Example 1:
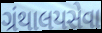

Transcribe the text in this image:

ગ્રંથાલયસેવા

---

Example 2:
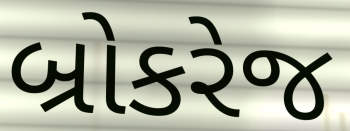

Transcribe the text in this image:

બ્રોકરેજ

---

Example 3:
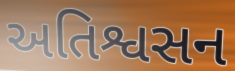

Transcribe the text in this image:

અતિશ્વસન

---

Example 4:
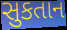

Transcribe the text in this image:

સુકતાન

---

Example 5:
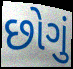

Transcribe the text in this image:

છોગું